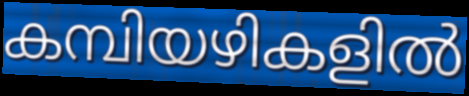
കമ്പിയഴികളിൽ